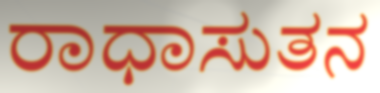
ರಾಧಾಸುತನ